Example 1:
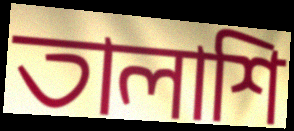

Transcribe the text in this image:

তালাশি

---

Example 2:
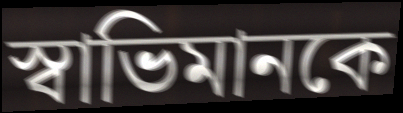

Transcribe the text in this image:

স্বাভিমানকে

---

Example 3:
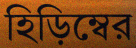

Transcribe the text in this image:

হিড়িম্বের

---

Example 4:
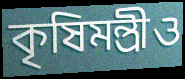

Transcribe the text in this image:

কৃষিমন্ত্রীও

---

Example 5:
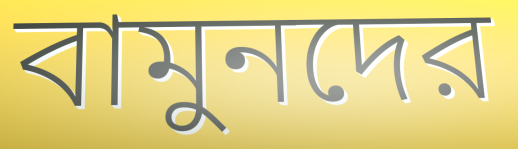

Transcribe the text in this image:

বামুনদের